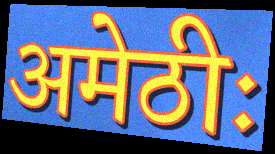
अमेठीः